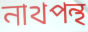
নাথপন্থ